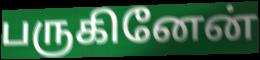
பருகினேன்